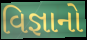
વિજ્ઞાનો